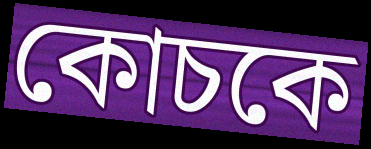
কোচকে